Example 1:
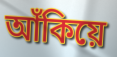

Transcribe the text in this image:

আঁকিয়ে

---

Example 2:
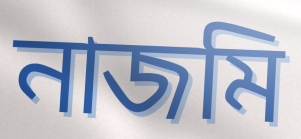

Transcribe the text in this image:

নাজমি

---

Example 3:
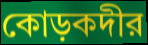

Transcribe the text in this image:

কোড়কদীর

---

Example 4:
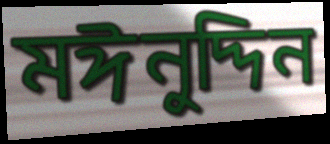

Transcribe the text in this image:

মঈনুদ্দিন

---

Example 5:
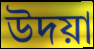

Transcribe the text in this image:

উদয়া